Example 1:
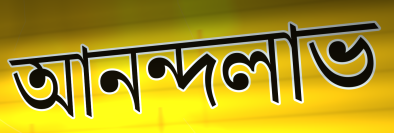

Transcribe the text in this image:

আনন্দলাভ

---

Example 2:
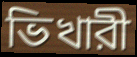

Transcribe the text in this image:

ভিখারী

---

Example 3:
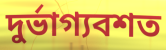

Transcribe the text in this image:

দুর্ভাগ্যবশত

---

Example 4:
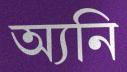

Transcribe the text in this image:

অ্যনি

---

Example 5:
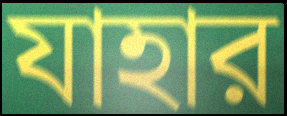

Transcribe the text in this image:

যাহার